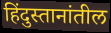
हिंदुस्तानांतील